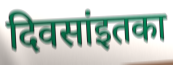
दिवसांइतका